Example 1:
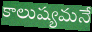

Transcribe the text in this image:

కాలుష్యమనే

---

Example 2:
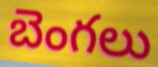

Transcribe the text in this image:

బెంగలు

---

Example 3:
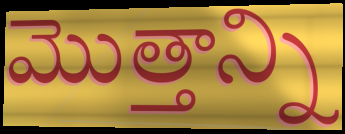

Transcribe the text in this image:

మొత్తాన్ని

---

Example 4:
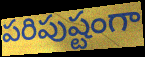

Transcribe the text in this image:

పరిపుష్టంగా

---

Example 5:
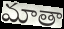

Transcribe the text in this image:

మాతా